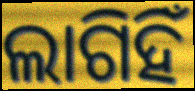
ଲାଗିହିଁ